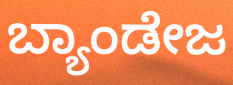
ಬ್ಯಾಂಡೇಜ